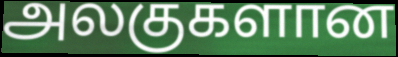
அலகுகளான